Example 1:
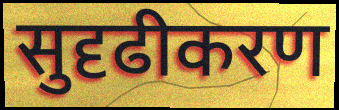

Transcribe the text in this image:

सुदृढीकरण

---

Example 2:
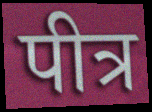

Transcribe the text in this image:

पीत्र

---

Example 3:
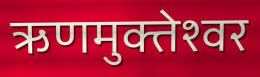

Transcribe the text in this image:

ऋणमुक्तेश्वर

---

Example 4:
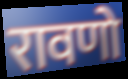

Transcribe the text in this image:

रावणो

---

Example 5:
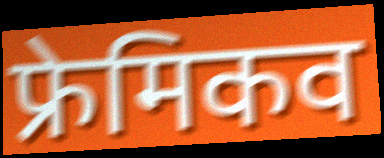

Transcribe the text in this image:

फ्रेमिकव